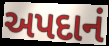
અપદાનં